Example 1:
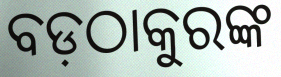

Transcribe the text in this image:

ବଡ଼ଠାକୁରଙ୍କ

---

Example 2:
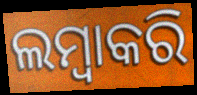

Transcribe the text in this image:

ଲମ୍ବାକରି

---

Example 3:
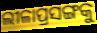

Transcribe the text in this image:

ଲୀଳାପ୍ରସଙ୍ଗକୁ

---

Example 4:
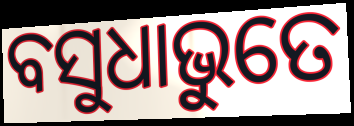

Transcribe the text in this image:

ବସୁଧାଭୁତେ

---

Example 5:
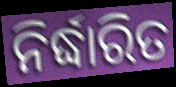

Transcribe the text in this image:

ନିର୍ଦ୍ଧାରିତ